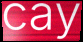
cay